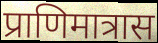
प्राणिमात्रास